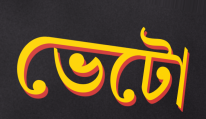
ভেটো